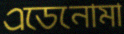
এডেনোমা